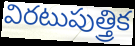
విరటుపుత్త్రిక